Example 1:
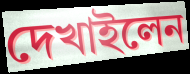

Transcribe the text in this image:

দেখাইলেন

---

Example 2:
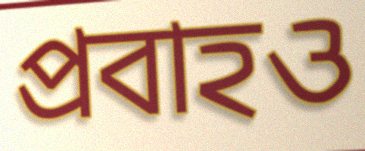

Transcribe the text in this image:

প্রবাহও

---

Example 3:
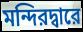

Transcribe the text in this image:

মন্দিরদ্বারে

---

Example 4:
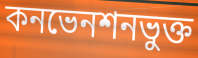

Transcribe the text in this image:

কনভেনশনভুক্ত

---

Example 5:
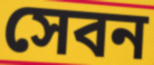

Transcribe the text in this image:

সেবন